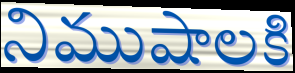
నిముషాలకి